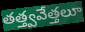
తత్త్వవేత్తలూ